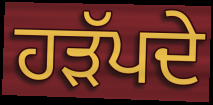
ਹੜੱਪਦੇ